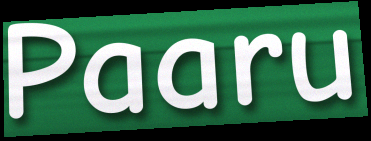
Paaru